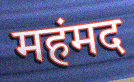
महंमद